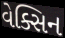
વેક્સિન